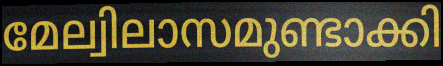
മേല്വിലാസമുണ്ടാക്കി